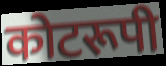
कोटरूपी